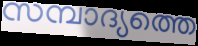
സമ്പാദ്യത്തെ